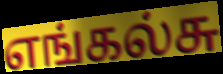
எங்கல்சு